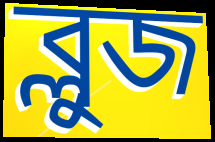
ব্লুজ